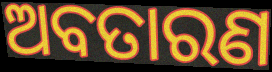
ଅବତାରଣ